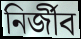
নিৰ্জীব